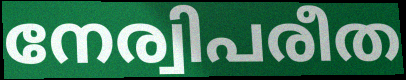
നേര്വിപരീത